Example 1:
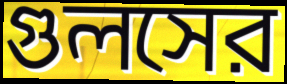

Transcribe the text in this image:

গুলসের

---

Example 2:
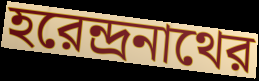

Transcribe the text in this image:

হরেন্দ্রনাথের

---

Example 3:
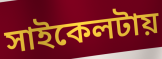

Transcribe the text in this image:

সাইকেলটায়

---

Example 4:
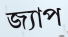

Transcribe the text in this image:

জ্যাপ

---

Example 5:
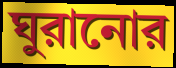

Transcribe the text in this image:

ঘুরানোর